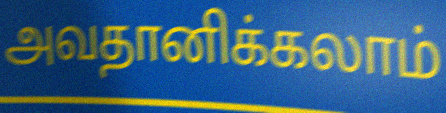
அவதானிக்கலாம்